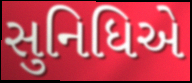
સુનિધિએ